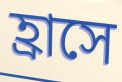
হ্রাসে